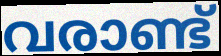
വരാണ്ട്